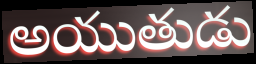
అయుతుడు